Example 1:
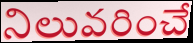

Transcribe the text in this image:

నిలువరించే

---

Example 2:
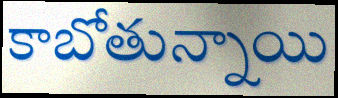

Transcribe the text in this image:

కాబోతున్నాయి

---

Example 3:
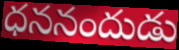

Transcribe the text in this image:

ధననందుడు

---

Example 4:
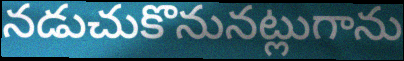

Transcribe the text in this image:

నడుచుకొనునట్లుగాను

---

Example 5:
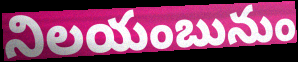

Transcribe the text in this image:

నిలయంబునుం